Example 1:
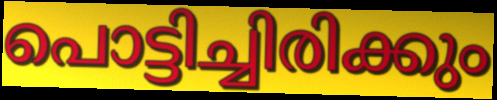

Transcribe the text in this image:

പൊട്ടിച്ചിരിക്കും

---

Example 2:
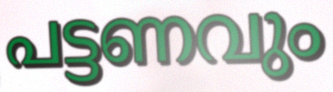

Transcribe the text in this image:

പട്ടണവും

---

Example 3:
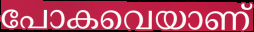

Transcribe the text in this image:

പോകവെയാണ്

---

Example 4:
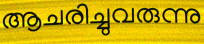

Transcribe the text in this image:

ആചരിച്ചുവരുന്നു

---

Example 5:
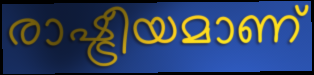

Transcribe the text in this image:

രാഷ്ട്രീയമാണ്